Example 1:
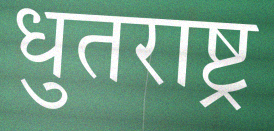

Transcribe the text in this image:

धुतराष्ट्र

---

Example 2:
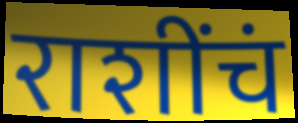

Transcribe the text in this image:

राशींचं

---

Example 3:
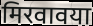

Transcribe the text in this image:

मिरवावया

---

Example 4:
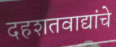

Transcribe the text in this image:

दहशतवाद्यांचे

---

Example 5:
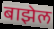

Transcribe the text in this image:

बाझेल